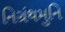
નિગ્રંથમુનિ